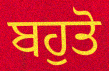
ਬਹੁਤੋ